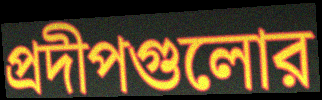
প্রদীপগুলোর